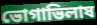
ভোগাভিলাষ